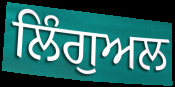
ਲਿੰਗੁਅਲ